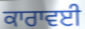
ਕਾਰਾਵਈ